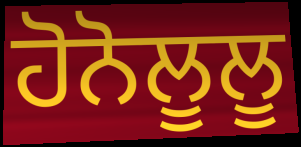
ਹੋਨੋਲੂਲੂ